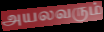
அயலவரும்